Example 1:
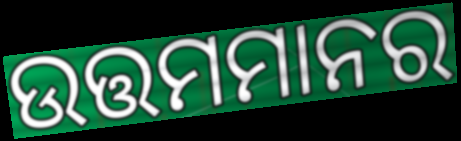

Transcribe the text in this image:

ଉତ୍ତମମାନର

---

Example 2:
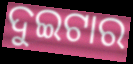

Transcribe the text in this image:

ଦୁଇଟାର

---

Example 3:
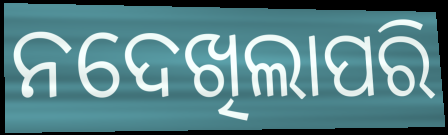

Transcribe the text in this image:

ନଦେଖିଲାପରି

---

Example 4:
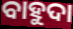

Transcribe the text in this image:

ବାହୁଦା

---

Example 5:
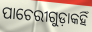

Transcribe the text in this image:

ପାଚେରୀଗୁଡ଼ାକହିଁ